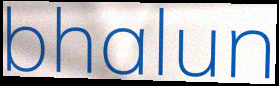
bhalun